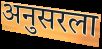
अनुसरला